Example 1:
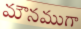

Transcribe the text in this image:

మౌనముగా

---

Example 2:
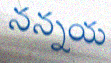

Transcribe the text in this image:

నన్నయ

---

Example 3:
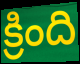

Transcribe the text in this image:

క్రింది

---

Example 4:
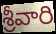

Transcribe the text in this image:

శ్రీవారి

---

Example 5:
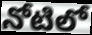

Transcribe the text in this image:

నోటిలో